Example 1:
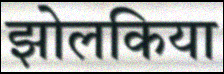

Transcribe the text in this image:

झोलकिया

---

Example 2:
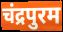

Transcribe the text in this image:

चंद्रपुरम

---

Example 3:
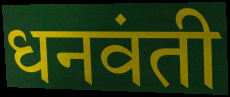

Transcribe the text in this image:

धनवंती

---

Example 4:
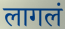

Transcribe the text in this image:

लागलं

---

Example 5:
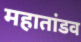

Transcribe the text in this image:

महातांडव